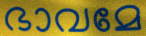
ഭാവമേ